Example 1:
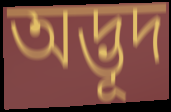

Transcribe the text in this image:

অদ্ভূদ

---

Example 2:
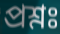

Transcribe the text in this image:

প্ৰশ্নঃ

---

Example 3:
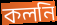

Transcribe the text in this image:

কলনি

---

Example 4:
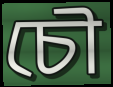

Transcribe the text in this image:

চৌ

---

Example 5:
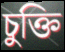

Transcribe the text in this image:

চুক্তি